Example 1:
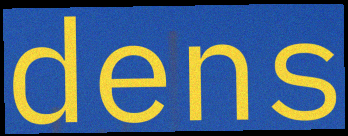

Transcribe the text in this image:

dens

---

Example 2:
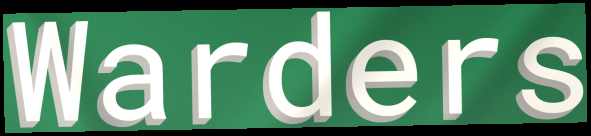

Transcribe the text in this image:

Warders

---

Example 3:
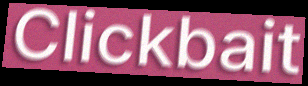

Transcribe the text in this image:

Clickbait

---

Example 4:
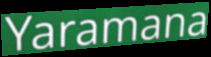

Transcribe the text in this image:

Yaramana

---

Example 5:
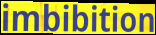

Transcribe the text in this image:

imbibition